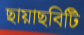
ছায়াছবিটি